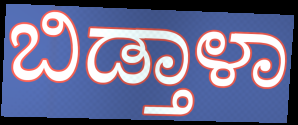
ಬಿಡ್ತಾಳಾ